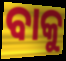
ବାକୁ